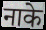
नाके